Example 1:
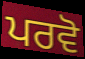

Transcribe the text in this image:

ਪਰਵੋ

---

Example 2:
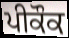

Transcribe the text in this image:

ਪੀਕੌਕ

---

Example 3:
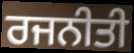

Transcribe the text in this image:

ਰਜਨੀਤੀ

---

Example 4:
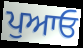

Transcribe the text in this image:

ਪੁਆਓ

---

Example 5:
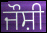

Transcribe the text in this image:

ਜੌਸ਼ੀ